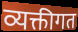
व्यक्तीगत